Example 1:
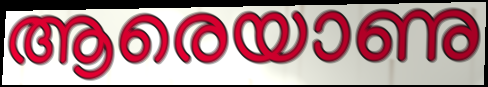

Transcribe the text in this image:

ആരെയാണു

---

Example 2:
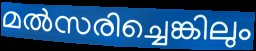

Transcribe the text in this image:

മൽസരിച്ചെങ്കിലും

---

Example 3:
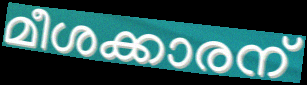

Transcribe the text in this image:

മീശക്കാരന്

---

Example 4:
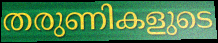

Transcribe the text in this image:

തരുണികളുടെ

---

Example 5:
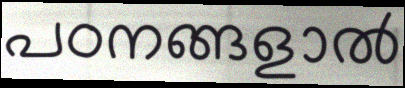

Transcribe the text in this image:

പഠനങ്ങളാൽ